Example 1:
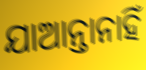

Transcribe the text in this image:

ଯାଆନ୍ତାନାହିଁ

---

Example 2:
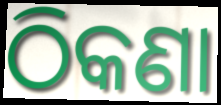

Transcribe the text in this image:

ଠିକଣା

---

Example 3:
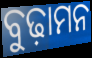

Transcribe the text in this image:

ବୁଢ଼ାମନ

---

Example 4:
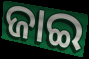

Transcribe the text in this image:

ଜାଇ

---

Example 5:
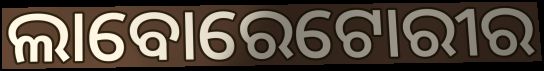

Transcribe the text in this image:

ଲାବୋରେଟୋରୀର